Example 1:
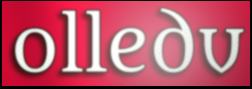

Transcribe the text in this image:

olledu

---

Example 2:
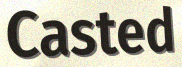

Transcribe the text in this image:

Casted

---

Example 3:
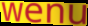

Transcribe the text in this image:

wenu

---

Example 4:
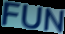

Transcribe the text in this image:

FUN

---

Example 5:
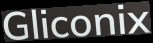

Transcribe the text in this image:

Gliconix